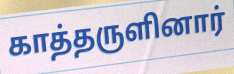
காத்தருளினார்